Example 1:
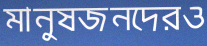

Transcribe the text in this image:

মানুষজনদেরও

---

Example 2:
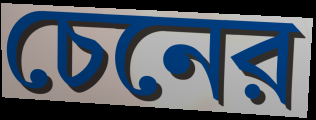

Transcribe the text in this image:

চেনের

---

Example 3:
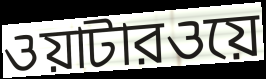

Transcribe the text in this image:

ওয়াটারওয়ে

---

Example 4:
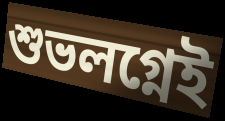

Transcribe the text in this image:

শুভলগ্নেই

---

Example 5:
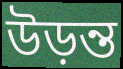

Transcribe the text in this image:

উড়ন্ত